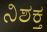
ನಿಶಕ್ತ